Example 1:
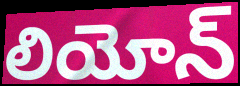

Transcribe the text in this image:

లియోన్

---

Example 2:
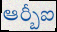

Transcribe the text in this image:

ఆర్బీఐ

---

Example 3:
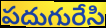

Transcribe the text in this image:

పదుగురేసి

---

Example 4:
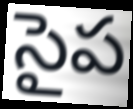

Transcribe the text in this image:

సైప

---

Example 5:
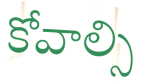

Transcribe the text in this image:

కోవాల్సి